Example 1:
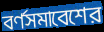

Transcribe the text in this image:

বর্ণসমাবেশের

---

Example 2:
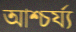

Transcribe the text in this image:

আশ্চর্য্য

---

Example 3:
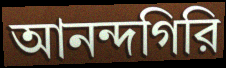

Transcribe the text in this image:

আনন্দগিরি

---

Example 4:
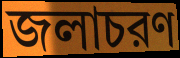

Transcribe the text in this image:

জলাচরণ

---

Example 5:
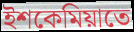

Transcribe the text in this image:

ইশকেমিয়াতে